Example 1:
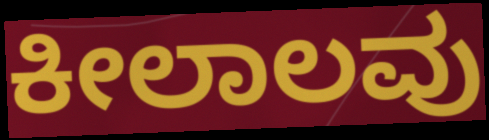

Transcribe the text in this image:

ಕೀಲಾಲವು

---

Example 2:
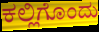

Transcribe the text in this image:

ಕಲ್ಲಿಗೊಂದು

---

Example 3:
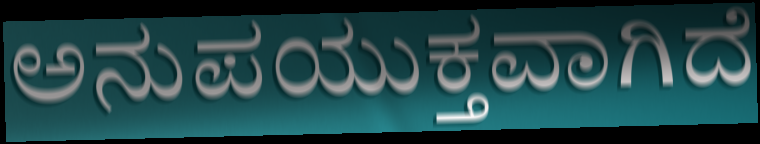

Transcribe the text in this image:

ಅನುಪಯುಕ್ತವಾಗಿದೆ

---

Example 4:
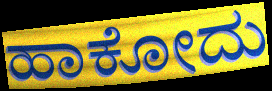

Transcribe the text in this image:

ಹಾಕೋದು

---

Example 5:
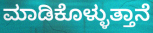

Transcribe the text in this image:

ಮಾಡಿಕೊಳ್ಳುತ್ತಾನೆ